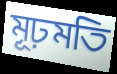
মূঢ়মতি